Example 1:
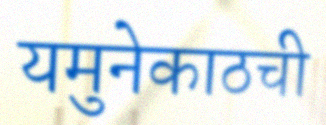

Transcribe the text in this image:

यमुनेकाठची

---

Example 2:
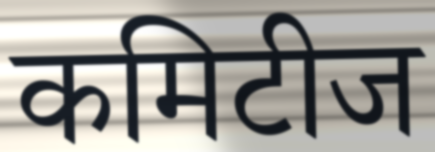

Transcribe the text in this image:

कमिटीज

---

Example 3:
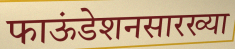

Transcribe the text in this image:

फाऊंडेशनसारख्या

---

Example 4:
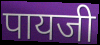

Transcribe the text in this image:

पायजी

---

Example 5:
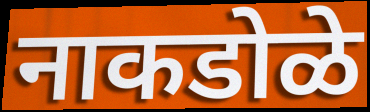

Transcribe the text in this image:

नाकडोळे